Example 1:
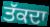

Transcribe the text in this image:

ਤੱਕਦਾ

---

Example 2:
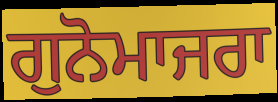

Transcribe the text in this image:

ਗੁਨੋਮਾਜਰਾ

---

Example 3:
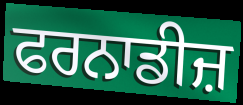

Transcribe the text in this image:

ਫਰਨਾਡੀਜ਼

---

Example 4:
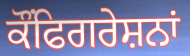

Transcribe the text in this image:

ਕੌਂਫਿਗਰੇਸ਼ਨਾਂ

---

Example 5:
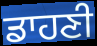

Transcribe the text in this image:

ਡਾਹਣੀ